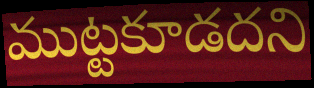
ముట్టకూడదని